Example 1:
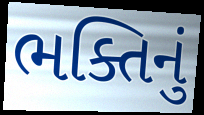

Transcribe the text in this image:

ભક્તિનું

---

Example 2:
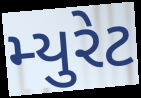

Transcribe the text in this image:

મ્યુરેટ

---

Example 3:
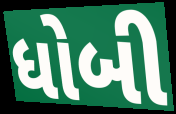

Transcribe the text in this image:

ધોબી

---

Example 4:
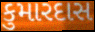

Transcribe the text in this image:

કુમારદાસ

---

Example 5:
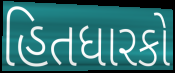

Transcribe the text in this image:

હિતધારકો